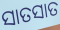
ସାତସାତ